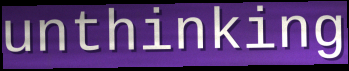
unthinking